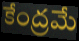
కేంద్రమే